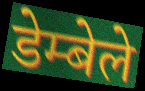
डेम्बेले